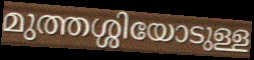
മുത്തശ്ശിയോടുള്ള